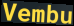
Vembu